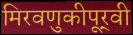
मिरवणुकीपूर्वी